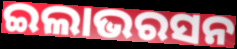
ଇଲାଭରସନ